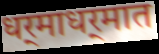
धर्माधर्मात